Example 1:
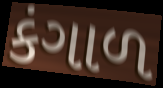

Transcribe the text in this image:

કંગાળ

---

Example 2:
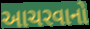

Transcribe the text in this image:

આચરવાનો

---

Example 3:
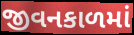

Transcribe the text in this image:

જીવનકાળમાં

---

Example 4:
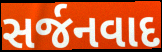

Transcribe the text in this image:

સર્જનવાદ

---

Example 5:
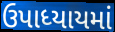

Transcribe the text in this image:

ઉપાધ્યાયમાં